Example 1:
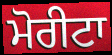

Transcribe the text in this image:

ਮੋਰੀਟਾ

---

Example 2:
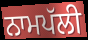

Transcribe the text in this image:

ਨਾਮਪੱਲੀ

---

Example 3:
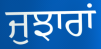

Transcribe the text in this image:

ਜੁਝਾਰਾਂ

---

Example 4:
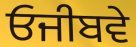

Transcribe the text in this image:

ਓਜੀਬਵੇ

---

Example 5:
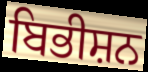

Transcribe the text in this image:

ਬਿਭੀਸ਼ਨ